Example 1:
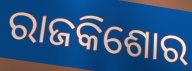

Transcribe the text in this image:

ରାଜକିଶୋର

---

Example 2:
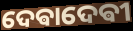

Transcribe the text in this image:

ଦେଵାଦେଵୀ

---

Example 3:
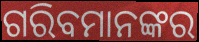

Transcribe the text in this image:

ଗରିବମାନଙ୍କର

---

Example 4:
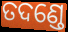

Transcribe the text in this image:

ତଦଣ୍ଡେ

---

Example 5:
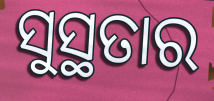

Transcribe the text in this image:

ସୁସ୍ଥତାର